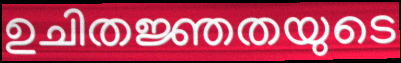
ഉചിതജ്ഞതയുടെ